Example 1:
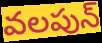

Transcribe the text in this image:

వలపున్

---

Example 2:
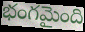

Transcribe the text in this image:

భంగమైంది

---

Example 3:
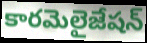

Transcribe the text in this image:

కారమెలైజేషన్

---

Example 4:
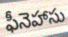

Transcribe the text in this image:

ఫీనెహాసు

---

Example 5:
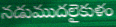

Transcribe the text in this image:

నడుముదలైకుళం